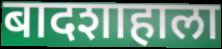
बादशाहाला